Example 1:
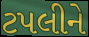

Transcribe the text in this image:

ટપલીને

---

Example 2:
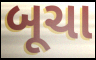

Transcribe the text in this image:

બૂચા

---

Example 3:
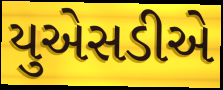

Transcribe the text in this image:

યુએસડીએ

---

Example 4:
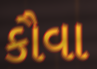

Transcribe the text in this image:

કૌવા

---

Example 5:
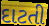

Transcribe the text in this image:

દાટતી